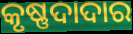
କୃଷ୍ଣଦାଦାର